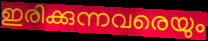
ഇരിക്കുന്നവരെയും